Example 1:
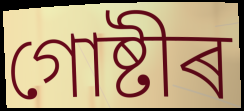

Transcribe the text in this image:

গোষ্টীৰ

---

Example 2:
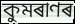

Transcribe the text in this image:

কুমৰাণৰ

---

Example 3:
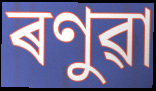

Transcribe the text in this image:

ৰণুৱা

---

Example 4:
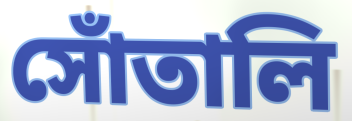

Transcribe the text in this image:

সোঁতালি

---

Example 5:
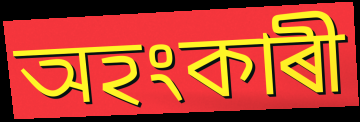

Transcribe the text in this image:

অহংকাৰী